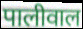
पालीवाल